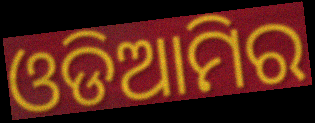
ଓଡିଆମିର